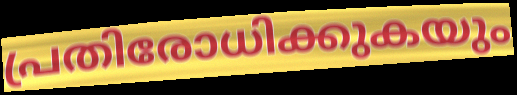
പ്രതിരോധിക്കുകയും